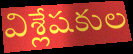
విశ్లేషకుల